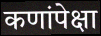
कणांपेक्षा